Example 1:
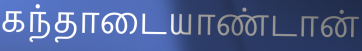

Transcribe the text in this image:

கந்தாடையாண்டான்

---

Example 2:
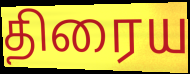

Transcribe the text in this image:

திரைய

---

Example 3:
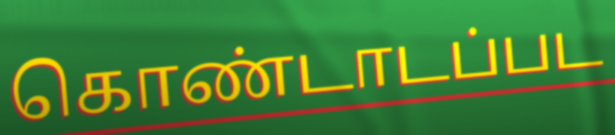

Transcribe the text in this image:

கொண்டாடப்பட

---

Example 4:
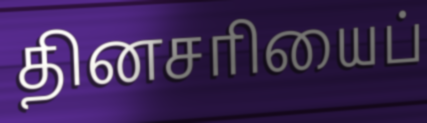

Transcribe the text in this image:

தினசரியைப்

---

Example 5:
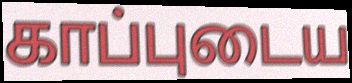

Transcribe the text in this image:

காப்புடைய